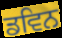
ਡਵਿਨ